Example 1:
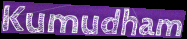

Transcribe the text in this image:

Kumudham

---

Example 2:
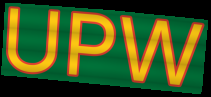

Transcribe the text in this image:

UPW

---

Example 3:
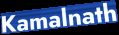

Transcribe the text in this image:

Kamalnath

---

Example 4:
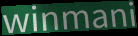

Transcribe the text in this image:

winmani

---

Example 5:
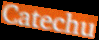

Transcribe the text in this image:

Catechu